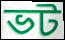
ভট